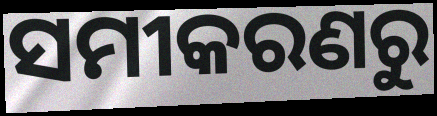
ସମୀକରଣରୁ